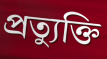
প্রত্যুক্তি